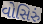
વોસિરું